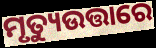
ମୃତ୍ୟୁଉତ୍ତାରେ